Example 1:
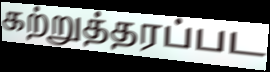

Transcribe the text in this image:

கற்றுத்தரப்பட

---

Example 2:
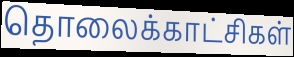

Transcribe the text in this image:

தொலைக்காட்சிகள்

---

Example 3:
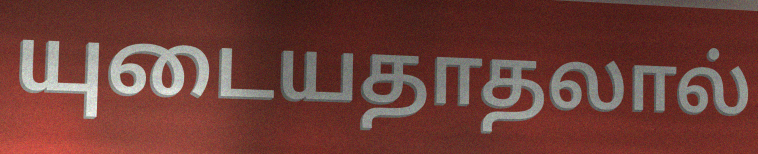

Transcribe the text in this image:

யுடையதாதலால்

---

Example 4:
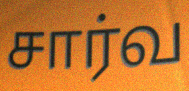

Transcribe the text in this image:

சார்வ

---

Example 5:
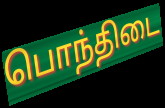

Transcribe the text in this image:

பொந்திடை